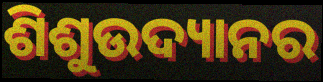
ଶିଶୁଉଦ୍ୟାନର